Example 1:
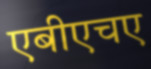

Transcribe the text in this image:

एबीएचए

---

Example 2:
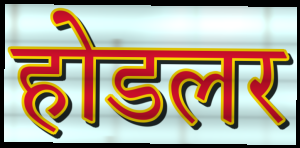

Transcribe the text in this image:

होडलर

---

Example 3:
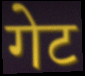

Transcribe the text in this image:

गेट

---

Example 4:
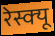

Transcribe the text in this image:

रेस्क्यू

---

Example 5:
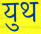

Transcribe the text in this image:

युथ